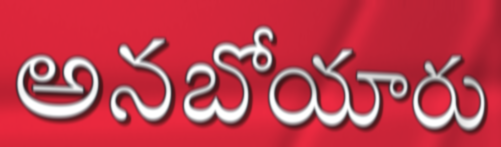
అనబోయారు